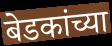
बेडकांच्या